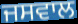
ਜਸਵਾਲ